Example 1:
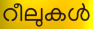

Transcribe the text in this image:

റീലുകൾ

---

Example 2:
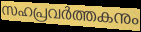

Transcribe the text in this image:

സഹപ്രവർത്തകനും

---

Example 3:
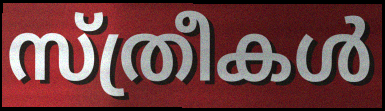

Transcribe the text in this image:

സ്ത്രീകൾ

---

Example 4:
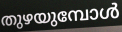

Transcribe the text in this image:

തുഴയുമ്പോൾ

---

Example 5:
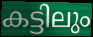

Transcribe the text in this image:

കട്ടിലും